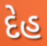
દેહ